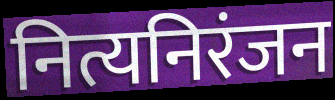
नित्यनिरंजन